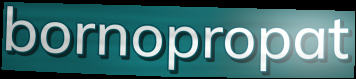
bornopropat